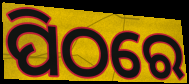
ପିଠରେ